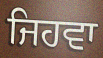
ਜਿਹਵਾ